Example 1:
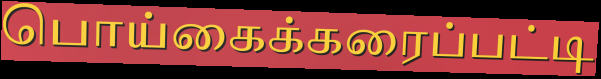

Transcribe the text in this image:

பொய்கைக்கரைப்பட்டி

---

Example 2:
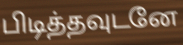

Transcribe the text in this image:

பிடித்தவுடனே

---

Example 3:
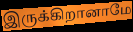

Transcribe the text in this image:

இருக்கிறானாமே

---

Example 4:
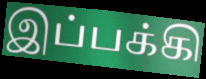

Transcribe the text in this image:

இப்பக்கி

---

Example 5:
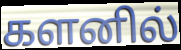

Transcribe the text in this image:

களனில்